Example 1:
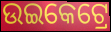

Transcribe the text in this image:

ଉଇକେଟ୍ରେ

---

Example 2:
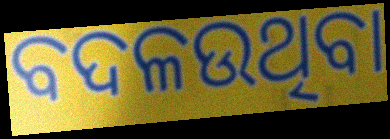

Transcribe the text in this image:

ବଦଳଉଥିବା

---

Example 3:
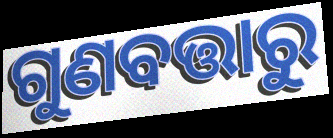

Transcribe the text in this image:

ଗୁଣବତ୍ତାରୁ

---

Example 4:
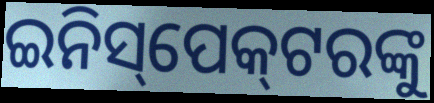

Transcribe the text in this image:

ଇନିସ୍‌ପେକ୍‌ଟରଙ୍କୁ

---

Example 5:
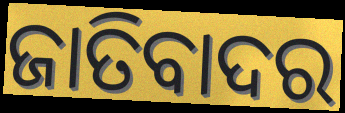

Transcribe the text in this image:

ଜାତିବାଦର